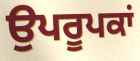
ਉਪਰੂਪਕਾਂ